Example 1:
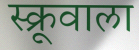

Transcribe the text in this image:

स्क्रूवाला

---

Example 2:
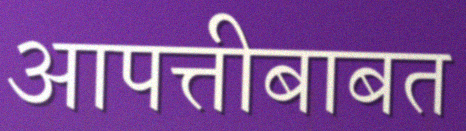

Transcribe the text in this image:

आपत्तीबाबत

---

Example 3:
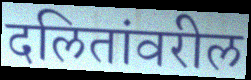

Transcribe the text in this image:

दलितांवरील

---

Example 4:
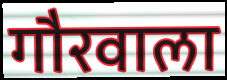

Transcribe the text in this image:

गौरवाला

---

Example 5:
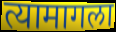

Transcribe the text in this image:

त्यामागला